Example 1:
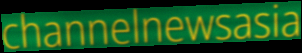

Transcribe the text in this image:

channelnewsasia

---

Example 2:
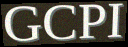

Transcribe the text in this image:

GCPI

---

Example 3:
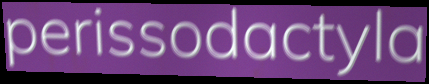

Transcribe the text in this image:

perissodactyla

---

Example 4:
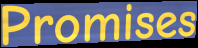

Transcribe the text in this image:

Promises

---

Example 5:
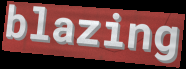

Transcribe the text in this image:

blazing